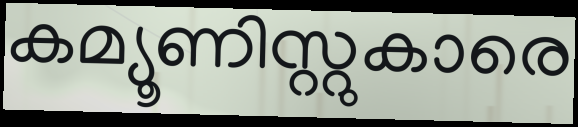
കമ്യൂണിസ്റ്റുകാരെ